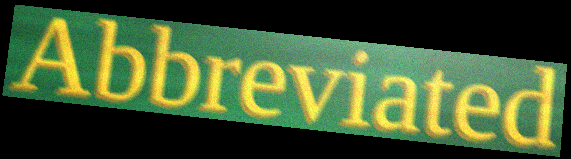
Abbreviated